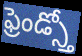
ఫ్రెండ్స్తో